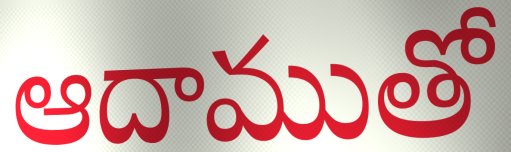
ఆదాముతో